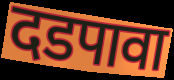
दडपावा